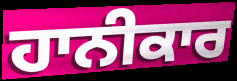
ਹਾਨੀਕਾਰ